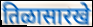
तिळासारखे